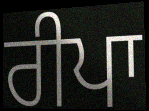
ਰੀਪਾ